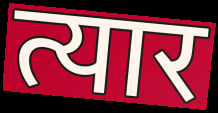
त्यार